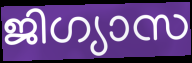
ജിഗ്യാസ